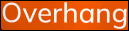
Overhang